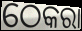
ଠେକରା